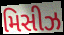
મિસીઝ